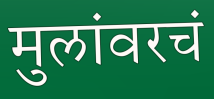
मुलांवरचं